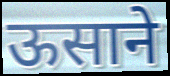
ऊसाने